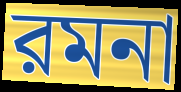
রমনা